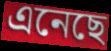
এনেছে